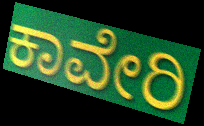
ಕಾವೇರಿ